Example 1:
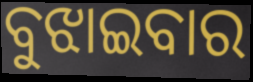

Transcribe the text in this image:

ବୁଝାଇବାର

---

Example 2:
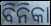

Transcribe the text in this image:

ବିନିକା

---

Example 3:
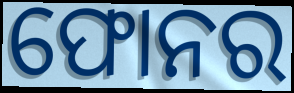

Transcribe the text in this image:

ଫୋନର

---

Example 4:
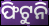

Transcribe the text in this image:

ଫିଟୁନି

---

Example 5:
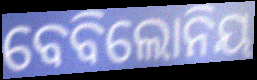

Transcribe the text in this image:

ବେବିଲୋନିୟ